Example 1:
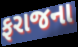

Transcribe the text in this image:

ફરાજના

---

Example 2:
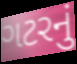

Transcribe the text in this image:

ગટરનું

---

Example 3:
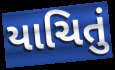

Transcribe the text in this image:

યાચિતું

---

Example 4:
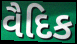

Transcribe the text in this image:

વૈદિક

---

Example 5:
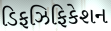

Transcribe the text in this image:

ડિફઝિફિકેશન